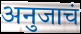
अनुजाचं